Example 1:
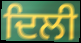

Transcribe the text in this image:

ਦਿਲੀ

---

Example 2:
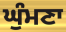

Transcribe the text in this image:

ਘੁੰਮਣਾ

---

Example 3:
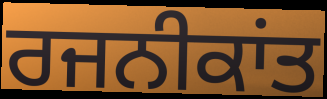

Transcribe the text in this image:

ਰਜਨੀਕਾਂਤ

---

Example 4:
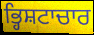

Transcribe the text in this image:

ਭ੍ਹਿਸ਼ਟਾਚਾਰ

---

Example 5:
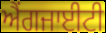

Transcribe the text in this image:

ਐਂਗਜਾਈਟੀ